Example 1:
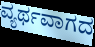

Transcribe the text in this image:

ವ್ಯರ್ಥವಾಗದ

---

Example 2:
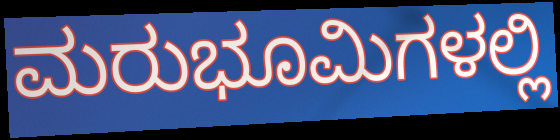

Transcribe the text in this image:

ಮರುಭೂಮಿಗಳಲ್ಲಿ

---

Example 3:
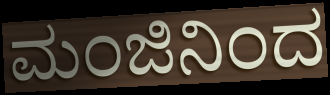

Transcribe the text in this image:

ಮಂಜಿನಿಂದ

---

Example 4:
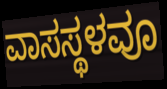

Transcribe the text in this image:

ವಾಸಸ್ಥಳವೂ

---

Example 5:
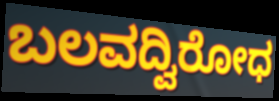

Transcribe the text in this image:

ಬಲವದ್ವಿರೋಧ